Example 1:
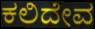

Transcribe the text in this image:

ಕಲಿದೇವ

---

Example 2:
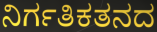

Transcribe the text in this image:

ನಿರ್ಗತಿಕತನದ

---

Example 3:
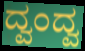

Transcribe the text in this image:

ದ್ವಂದ್ವ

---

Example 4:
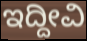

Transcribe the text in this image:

ಇದ್ದೀವಿ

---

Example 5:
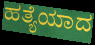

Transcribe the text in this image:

ಹತ್ಯೆಯಾದ